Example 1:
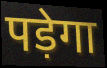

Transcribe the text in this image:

पड़ेगा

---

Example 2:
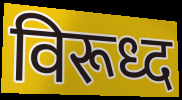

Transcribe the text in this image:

विरूध्द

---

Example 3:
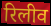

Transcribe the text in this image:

रिलीव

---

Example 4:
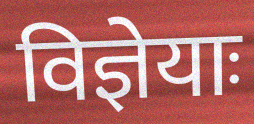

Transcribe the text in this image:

विज्ञेयाः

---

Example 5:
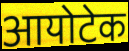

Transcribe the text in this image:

आयोटेक